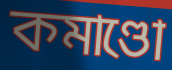
কমাণ্ডো